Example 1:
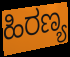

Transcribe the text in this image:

ಹಿರಣ್ಯ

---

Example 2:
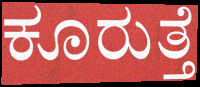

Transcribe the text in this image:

ಕೂರುತ್ತೆ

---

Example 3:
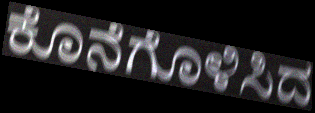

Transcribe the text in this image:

ಕೊನೆಗೊಳಿಸಿದ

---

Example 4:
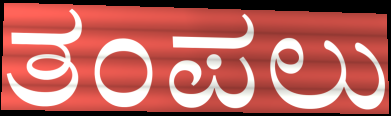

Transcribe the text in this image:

ತಂಪಲು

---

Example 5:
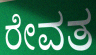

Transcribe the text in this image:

ರೇವತ